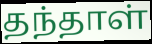
தந்தாள்